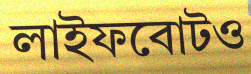
লাইফবোটও